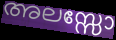
അലസ്സോ